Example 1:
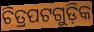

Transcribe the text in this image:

ଚିତ୍ରପଟଗୁଡ଼ିକ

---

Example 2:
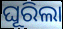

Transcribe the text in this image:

ଘୂରିଲା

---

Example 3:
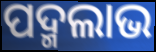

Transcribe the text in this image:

ପଦ୍ମଲାଭ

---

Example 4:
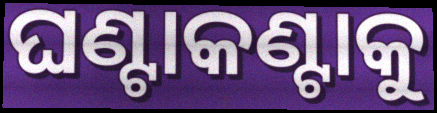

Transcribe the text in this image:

ଘଣ୍ଟାକଣ୍ଟାକୁ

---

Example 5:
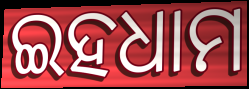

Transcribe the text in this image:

ଇହଧାମ